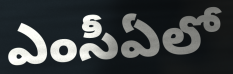
ఎంసీఏలో